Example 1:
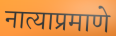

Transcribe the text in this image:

नात्याप्रमाणे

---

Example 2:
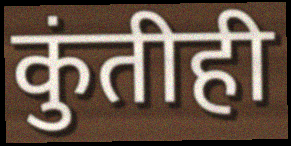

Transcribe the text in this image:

कुंतीही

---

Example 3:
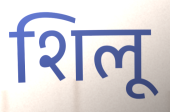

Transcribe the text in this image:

शिलू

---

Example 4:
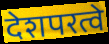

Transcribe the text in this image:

देशपरत्वे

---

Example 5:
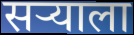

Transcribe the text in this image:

सऱ्याला